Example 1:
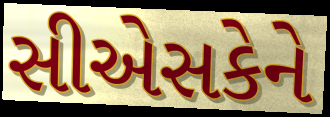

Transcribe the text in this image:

સીએસકેને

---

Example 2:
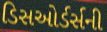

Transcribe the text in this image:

ડિસઓર્ડર્સની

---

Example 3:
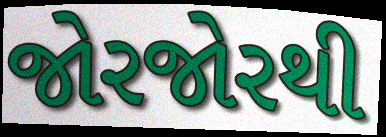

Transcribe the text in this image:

જોરજોરથી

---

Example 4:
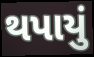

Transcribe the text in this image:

થપાયું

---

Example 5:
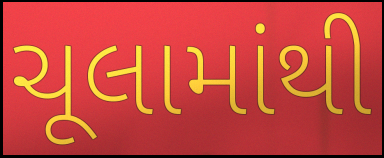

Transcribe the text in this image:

ચૂલામાંથી